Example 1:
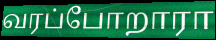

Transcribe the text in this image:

வரப்போறாரா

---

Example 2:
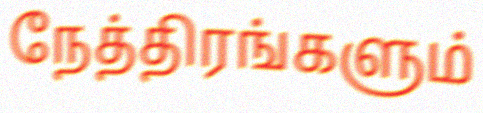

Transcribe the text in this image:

நேத்திரங்களும்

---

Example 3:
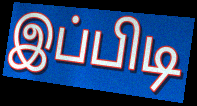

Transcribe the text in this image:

இப்பிடி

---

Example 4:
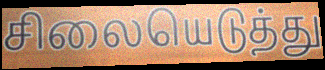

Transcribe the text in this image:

சிலையெடுத்து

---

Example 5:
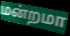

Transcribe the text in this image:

மன்றமா